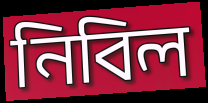
নিবিল